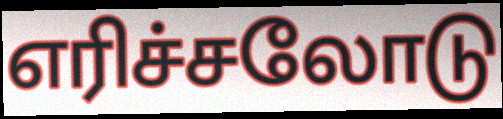
எரிச்சலோடு